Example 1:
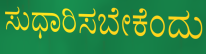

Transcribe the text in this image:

ಸುಧಾರಿಸಬೇಕೆಂದು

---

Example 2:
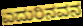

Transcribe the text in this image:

ಎದುರಿನವನ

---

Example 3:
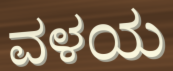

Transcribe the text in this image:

ವಳಯ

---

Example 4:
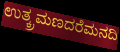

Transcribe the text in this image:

ಉತ್ಕ್ರಮಣದರೆಮನದಿ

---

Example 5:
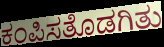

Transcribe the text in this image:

ಕಂಪಿಸತೊಡಗಿತು